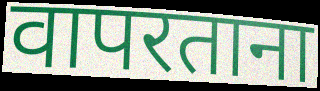
वापरताना